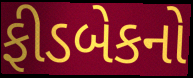
ફીડબેકનો